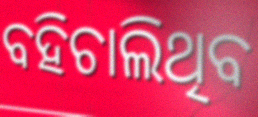
ବହିଚାଲିଥିବ